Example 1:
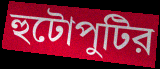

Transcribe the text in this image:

হুটোপুটির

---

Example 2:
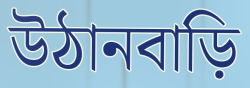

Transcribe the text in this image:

উঠানবাড়ি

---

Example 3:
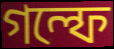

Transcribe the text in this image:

গল্ফে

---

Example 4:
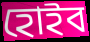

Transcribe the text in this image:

হোইব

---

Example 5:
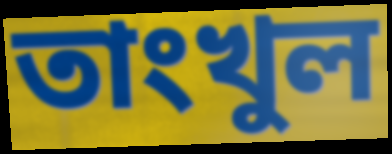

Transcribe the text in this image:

তাংখুল